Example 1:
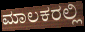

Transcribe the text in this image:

ಮಾಲಕರಲ್ಲಿ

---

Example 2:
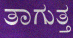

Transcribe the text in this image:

ತಾಗುತ್ತ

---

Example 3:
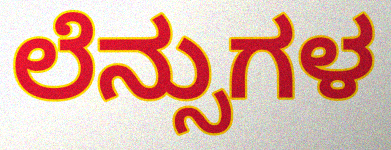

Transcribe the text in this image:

ಲೆನ್ಸುಗಳ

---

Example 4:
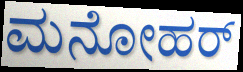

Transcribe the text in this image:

ಮನೋಹರ್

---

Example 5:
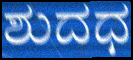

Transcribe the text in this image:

ಶುದಧ